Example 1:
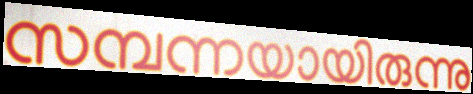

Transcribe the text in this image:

സമ്പന്നയായിരുന്നു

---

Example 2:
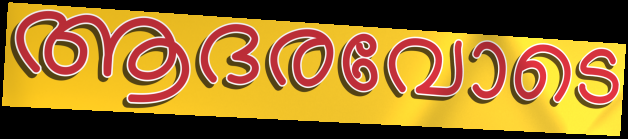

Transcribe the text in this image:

ആദരവോടെ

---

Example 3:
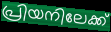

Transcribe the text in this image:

പ്രിയനിലേക്ക്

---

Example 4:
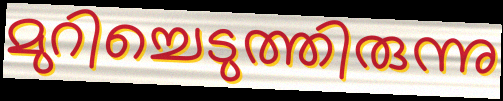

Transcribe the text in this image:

മുറിച്ചെടുത്തിരുന്നു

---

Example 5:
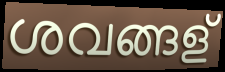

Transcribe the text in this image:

ശവങ്ങള്